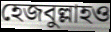
হেজবুল্লাহও